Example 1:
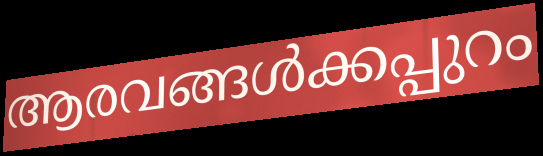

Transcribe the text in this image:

ആരവങ്ങൾക്കപ്പുറം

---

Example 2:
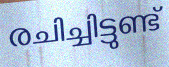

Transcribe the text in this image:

രചിച്ചിട്ടുണ്ട്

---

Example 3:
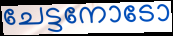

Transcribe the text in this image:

ചേട്ടനോടോ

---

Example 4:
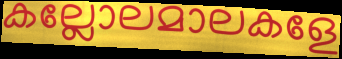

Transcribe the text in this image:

കല്ലോലമാലകളേ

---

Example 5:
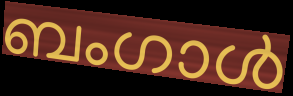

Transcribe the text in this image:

ബംഗാൾ